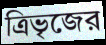
ত্রিভৃজের